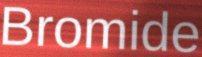
Bromide